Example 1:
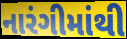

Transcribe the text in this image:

નારંગીમાંથી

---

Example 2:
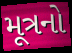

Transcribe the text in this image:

મૂત્રનો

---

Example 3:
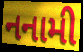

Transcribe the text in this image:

નનામી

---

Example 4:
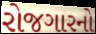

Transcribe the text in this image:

રોજગારનો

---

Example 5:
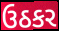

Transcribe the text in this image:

ઉઠકર